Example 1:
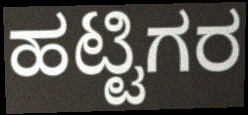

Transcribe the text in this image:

ಹಟ್ಟಿಗರ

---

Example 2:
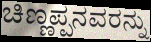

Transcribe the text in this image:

ಚಿಣ್ಣಪ್ಪನವರನ್ನು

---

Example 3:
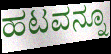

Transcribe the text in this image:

ಹಟವನ್ನೂ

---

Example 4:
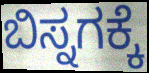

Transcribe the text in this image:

ಬಿಸ್ನಗಕ್ಕೆ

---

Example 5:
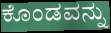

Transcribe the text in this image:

ಕೊಂಡವನ್ನು